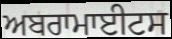
ਅਬਰਾਮਾਈਟਸ